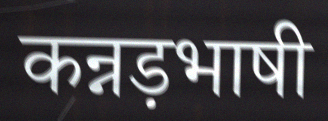
कन्नड़भाषी